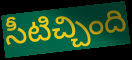
సీటిచ్చింది